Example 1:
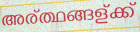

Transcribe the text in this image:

അര്ത്ഥങ്ങള്ക്ക്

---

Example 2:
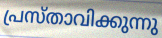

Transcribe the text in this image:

പ്രസ്താവിക്കുന്നു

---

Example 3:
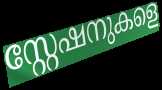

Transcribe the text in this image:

സ്റ്റേഷനുകളെ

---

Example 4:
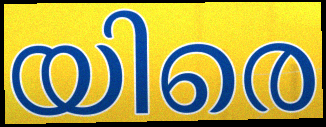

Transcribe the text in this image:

യിരെ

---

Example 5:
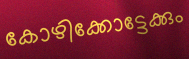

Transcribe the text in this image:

കോഴിക്കോട്ടേക്കും